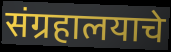
संग्रहालयाचे